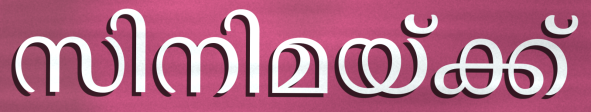
സിനിമയ്ക്ക്